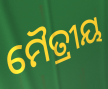
ମୈତ୍ରୀୟ